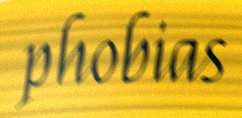
phobias